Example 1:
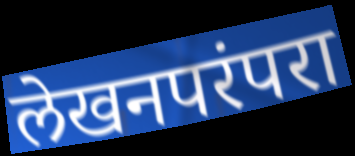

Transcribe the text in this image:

लेखनपरंपरा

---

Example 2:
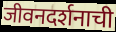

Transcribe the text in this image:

जीवनदर्शनाची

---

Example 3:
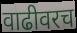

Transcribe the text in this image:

वाढीवरच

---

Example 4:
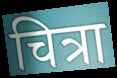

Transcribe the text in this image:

चित्रा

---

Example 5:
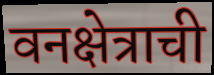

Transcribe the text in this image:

वनक्षेत्राची